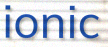
ionic